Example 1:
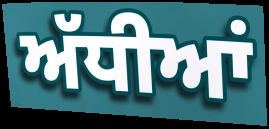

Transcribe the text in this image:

ਅੱਧੀਆਂ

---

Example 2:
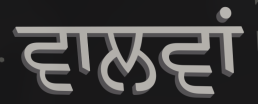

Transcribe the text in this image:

ਵਾਲਵਾਂ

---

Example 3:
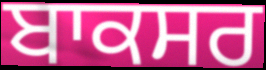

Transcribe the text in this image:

ਬਾਕਸਰ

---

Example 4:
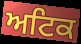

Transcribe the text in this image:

ਅਟਿਕ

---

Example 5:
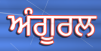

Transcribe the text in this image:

ਅੰਗੂਰਲ